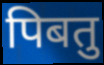
पिबतु